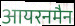
आयरनमैन